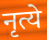
नृत्ये